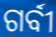
ଗର୍ବୀ